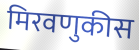
मिरवणुकीस